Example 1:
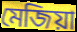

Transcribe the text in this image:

মেজিয়া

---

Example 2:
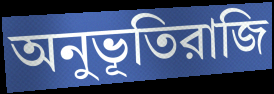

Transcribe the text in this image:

অনুভূতিরাজি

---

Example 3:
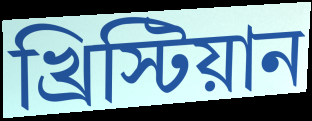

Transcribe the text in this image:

খ্রিস্টিয়ান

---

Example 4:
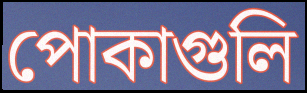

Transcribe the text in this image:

পোকাগুলি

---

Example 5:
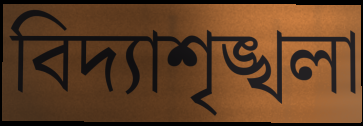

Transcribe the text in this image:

বিদ্যাশৃঙ্খলা